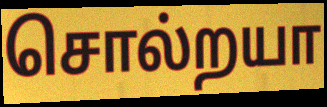
சொல்றயா